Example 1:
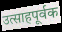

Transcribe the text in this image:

उत्साहपूर्वक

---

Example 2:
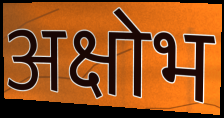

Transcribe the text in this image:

अक्षोभ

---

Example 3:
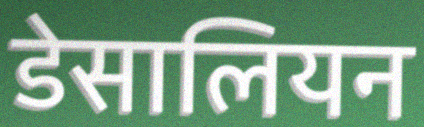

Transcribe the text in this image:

डेसालियन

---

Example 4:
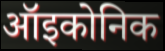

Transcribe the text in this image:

ऑइकोनिक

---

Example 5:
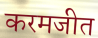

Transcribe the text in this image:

करमजीत